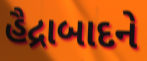
હૈદ્રાબાદને